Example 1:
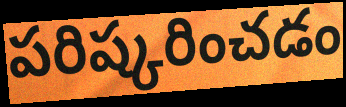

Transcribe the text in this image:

పరిష్కరించడం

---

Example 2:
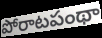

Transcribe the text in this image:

పోరాటపంథా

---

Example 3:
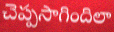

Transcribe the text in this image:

చెప్పసాగిందిలా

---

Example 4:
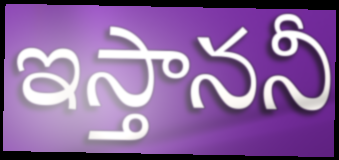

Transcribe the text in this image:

ఇస్తాననీ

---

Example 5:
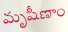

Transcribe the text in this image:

మృషీణాం